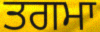
ਤਗਮਾ